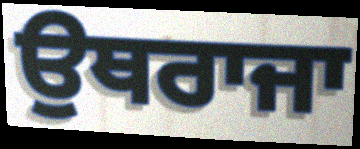
ਉਥਰਾਜਾ